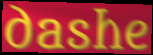
dashe